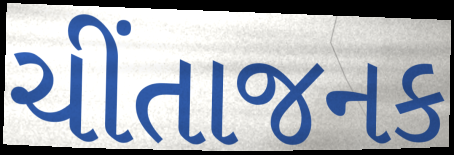
ચીંતાજનક